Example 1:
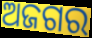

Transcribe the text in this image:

ଅଜଗର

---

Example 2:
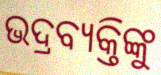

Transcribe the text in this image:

ଭଦ୍ରବ୍ୟକ୍ତିଙ୍କୁ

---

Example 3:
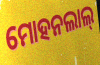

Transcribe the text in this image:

ମୋହନଲାଲ୍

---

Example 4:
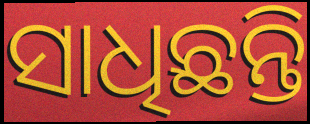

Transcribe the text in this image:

ସାଧିଛନ୍ତି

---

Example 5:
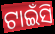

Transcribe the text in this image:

ଟାଇଁସି